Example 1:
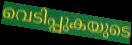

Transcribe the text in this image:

വെടിപ്പുകയുടെ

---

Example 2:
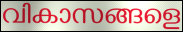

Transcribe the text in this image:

വികാസങ്ങളെ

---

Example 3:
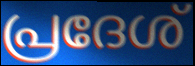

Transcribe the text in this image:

പ്രദേശ്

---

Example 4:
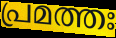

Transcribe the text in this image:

പ്രമത്തഃ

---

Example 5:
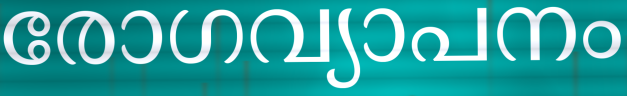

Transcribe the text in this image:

രോഗവ്യാപനം